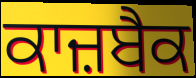
ਕਾਜ਼ਬੈਕ